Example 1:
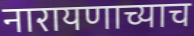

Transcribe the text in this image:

नारायणाच्याच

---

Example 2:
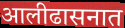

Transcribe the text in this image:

आलीढासनात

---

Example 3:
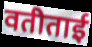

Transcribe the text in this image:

वतीताई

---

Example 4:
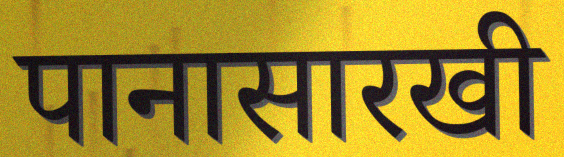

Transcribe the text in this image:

पानासारखी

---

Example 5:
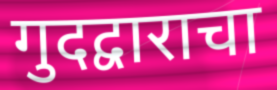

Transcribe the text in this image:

गुदद्वाराचा